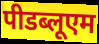
पीडब्लूएम